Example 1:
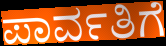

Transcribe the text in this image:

ಪಾರ್ವತಿಗೆ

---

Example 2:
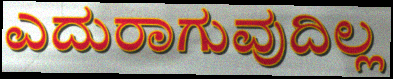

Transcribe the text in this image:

ಎದುರಾಗುವುದಿಲ್ಲ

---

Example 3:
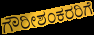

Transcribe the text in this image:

ಗೌರೀಶಂಕರರಿಗೆ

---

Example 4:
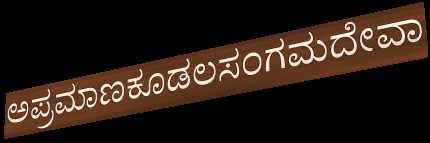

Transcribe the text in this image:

ಅಪ್ರಮಾಣಕೂಡಲಸಂಗಮದೇವಾ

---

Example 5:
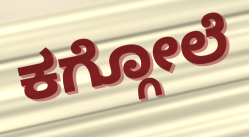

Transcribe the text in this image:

ಕಗ್ಗೋಲೆ